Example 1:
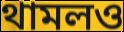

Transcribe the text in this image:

থামলও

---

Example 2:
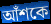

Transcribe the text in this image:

আঁশকে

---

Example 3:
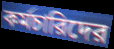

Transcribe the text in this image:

কর্মচারিদের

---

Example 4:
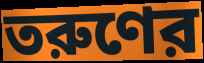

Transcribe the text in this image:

তরুণের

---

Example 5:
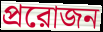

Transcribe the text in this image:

প্ররোজন